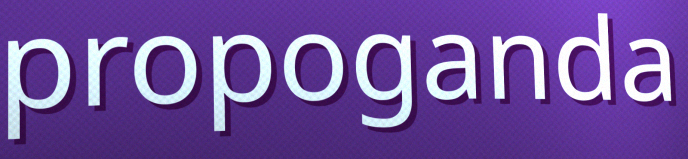
propoganda